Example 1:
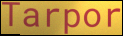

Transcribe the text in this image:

Tarpor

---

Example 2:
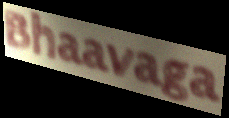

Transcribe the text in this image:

Bhaavaga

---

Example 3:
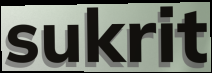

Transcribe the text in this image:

sukrit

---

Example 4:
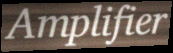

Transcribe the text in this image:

Amplifier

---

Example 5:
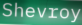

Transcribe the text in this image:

Shevroy